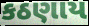
કઠણાય